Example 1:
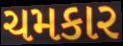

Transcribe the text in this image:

ચમકાર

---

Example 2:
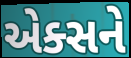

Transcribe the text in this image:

એક્સને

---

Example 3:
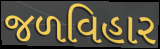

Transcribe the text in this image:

જળવિહાર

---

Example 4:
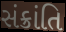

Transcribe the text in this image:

સંક્રાંતિ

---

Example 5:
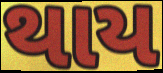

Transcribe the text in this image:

થાય